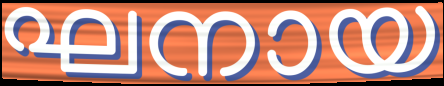
ഘനായ